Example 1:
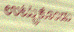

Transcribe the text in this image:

ಉಟ್ಟುಕೊಂಡು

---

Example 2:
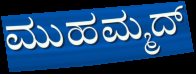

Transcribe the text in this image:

ಮುಹಮ್ಮದ್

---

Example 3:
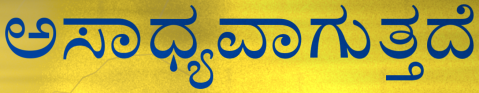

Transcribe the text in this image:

ಅಸಾಧ್ಯವಾಗುತ್ತದೆ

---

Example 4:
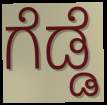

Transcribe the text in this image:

ಗೆಡ್ಡೆ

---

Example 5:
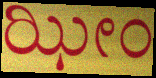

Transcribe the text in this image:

ಝೀಂ